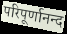
परिपूर्णानन्द